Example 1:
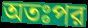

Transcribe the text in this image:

অতঃপর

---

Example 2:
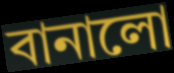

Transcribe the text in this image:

বানালো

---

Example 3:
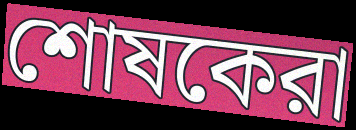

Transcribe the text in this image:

শোষকেরা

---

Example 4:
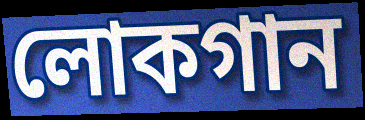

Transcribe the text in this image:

লোকগান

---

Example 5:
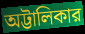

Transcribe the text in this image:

অট্টালিকার